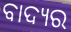
ବାଦ୍ୟର